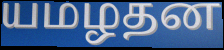
யமழதன